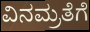
ವಿನಮ್ರತೆಗೆ